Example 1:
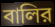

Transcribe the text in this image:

বালির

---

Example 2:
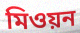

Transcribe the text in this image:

মিওয়ন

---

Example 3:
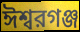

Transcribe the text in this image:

ঈশ্বরগঞ্জ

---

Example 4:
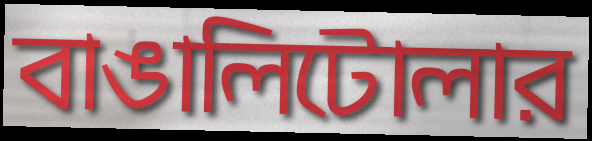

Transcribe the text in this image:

বাঙালিটোলার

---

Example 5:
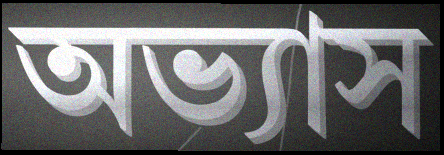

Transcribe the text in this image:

অভ্যাস